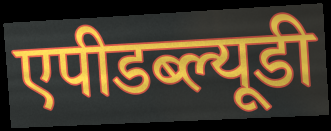
एपीडब्ल्यूडी